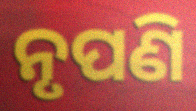
ନୃପଣି